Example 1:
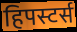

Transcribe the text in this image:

हिपस्टर्स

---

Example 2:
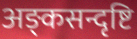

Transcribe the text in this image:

अङ्कसन्दृष्टि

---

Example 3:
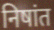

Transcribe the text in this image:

निषांत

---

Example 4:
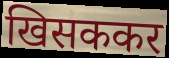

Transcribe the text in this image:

खिसककर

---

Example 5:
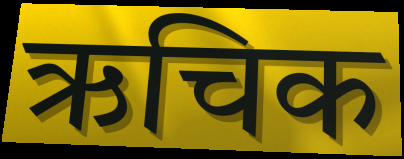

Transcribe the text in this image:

ऋचिक